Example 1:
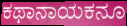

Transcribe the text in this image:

ಕಥಾನಾಯಕನೂ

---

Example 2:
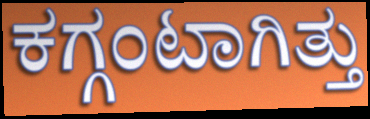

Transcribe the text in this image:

ಕಗ್ಗಂಟಾಗಿತ್ತು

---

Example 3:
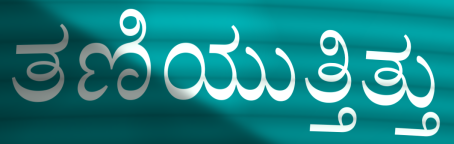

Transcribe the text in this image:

ತಣಿಯುತ್ತಿತ್ತು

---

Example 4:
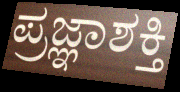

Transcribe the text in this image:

ಪ್ರಜ್ಞಾಶಕ್ತಿ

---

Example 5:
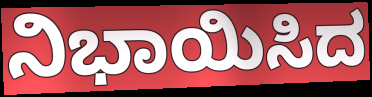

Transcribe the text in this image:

ನಿಭಾಯಿಸಿದ